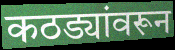
कठड्यांवरून